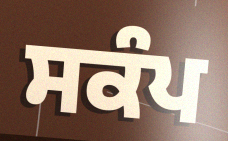
ਸਕੰਪ